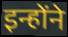
इन्‍होंने